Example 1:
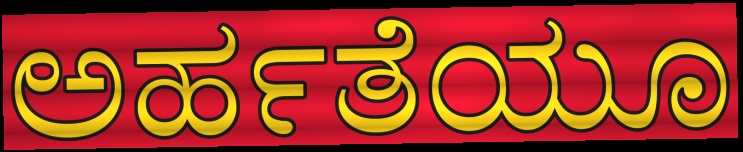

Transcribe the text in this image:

ಅರ್ಹತೆಯೂ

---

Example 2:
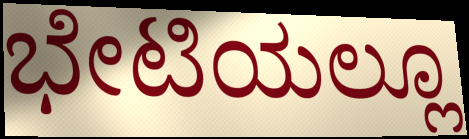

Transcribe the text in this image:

ಭೇಟಿಯಲ್ಲೂ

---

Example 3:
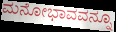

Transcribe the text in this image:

ಮನೋಭಾವವನ್ನೂ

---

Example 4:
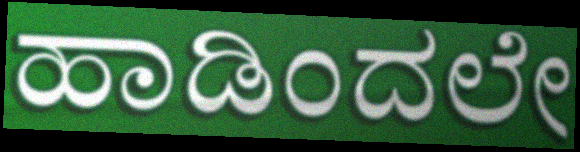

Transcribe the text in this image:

ಹಾಡಿಂದಲೇ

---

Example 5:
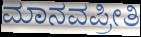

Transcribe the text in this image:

ಮಾನವಪ್ರೀತಿ